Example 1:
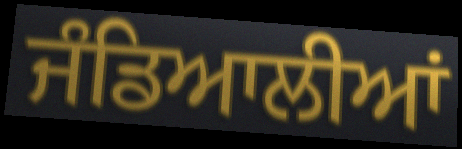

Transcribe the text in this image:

ਜੰਡਿਆਲੀਆਂ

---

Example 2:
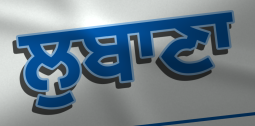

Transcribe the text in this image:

ਲੁਬਾਣਾ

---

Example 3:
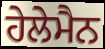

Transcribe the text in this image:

ਹੇਲੇਮੈਨ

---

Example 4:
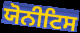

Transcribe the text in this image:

ਯੋਨੀਟਿਸ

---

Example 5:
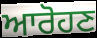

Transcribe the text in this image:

ਆਰੋਹਣ